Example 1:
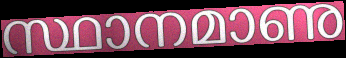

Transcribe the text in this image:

സ്ഥാനമാണു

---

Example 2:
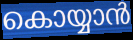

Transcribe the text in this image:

കൊയ്യാൻ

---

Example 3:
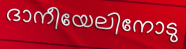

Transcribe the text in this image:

ദാനീയേലിനോടു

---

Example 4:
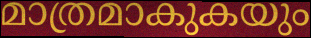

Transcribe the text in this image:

മാത്രമാകുകയും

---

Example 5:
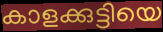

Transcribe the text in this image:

കാളക്കുട്ടിയെ